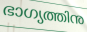
ഭാഗ്യത്തിനു